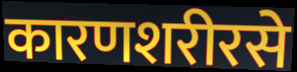
कारणशरीरसे